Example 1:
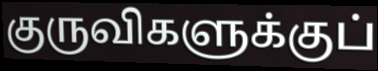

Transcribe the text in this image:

குருவிகளுக்குப்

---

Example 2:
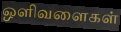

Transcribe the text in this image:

ஒளிவளைகள்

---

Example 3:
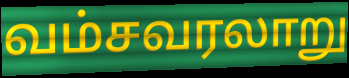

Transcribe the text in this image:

வம்சவரலாறு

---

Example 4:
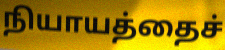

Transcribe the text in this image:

நியாயத்தைச்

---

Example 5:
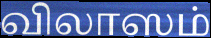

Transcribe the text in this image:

விலாஸம்